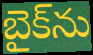
బైక్‌ను